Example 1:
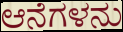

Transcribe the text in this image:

ಆನೆಗಳನು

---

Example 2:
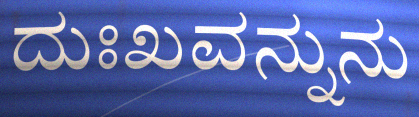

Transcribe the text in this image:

ದುಃಖವನ್ನುನು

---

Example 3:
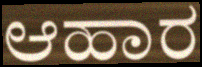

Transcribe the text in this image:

ಆಹಾರ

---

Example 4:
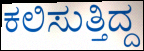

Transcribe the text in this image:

ಕಲಿಸುತ್ತಿದ್ದ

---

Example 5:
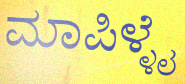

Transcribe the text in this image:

ಮಾಪಿಳ್ಳೈ